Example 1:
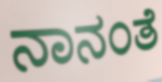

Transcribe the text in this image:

ನಾನಂತೆ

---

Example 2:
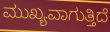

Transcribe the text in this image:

ಮುಖ್ಯವಾಗುತ್ತಿದೆ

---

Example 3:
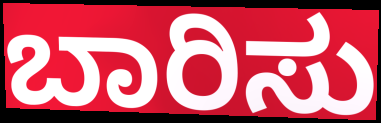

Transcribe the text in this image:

ಬಾರಿಸು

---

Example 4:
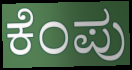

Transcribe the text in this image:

ಕೆಂಪು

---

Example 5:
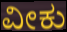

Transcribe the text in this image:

ವೀಕು